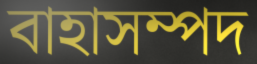
বাহাসম্পদ